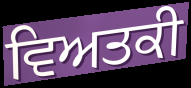
ਵਿਅਤਕੀ